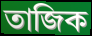
তাজিক